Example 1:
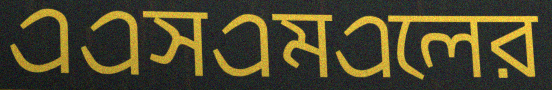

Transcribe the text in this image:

এএসএমএলের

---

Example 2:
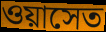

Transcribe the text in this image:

ওয়াসেত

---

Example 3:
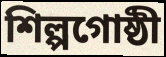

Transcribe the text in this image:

শিল্পগোষ্ঠী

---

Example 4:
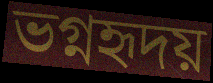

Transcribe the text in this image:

ভগ্নহৃদয়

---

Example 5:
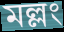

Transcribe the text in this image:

মল্লং